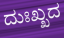
ದುಃಖ್ಖದ